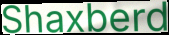
Shaxberd